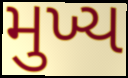
મુખ્ય